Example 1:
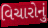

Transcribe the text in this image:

વિચારોનું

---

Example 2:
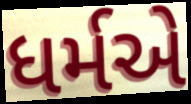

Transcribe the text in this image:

ધર્મએ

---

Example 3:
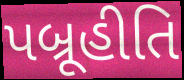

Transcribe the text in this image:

પબ્રૂહીતિ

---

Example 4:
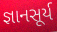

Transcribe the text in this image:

જ્ઞાનસૂર્ય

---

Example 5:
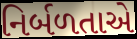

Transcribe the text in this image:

નિર્બળતાએ